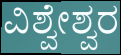
ವಿಶ್ವೇಶ್ವರ